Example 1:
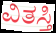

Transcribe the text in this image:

ವಿತಸ್ತಿ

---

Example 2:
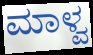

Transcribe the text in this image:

ಮಾಳ್ವ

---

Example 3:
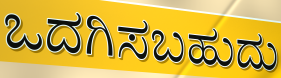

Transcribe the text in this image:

ಒದಗಿಸಬಹುದು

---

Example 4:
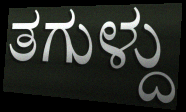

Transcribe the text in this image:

ತಗುಳ್ದು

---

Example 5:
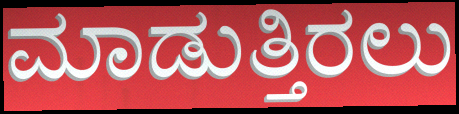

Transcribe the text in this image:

ಮಾಡುತ್ತಿರಲು